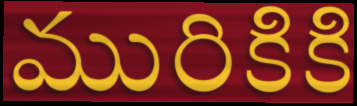
మురికికి